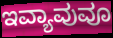
ಇವ್ಯಾವುವೂ